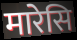
मारेसि